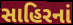
સાહિરનાં